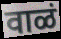
वाळं